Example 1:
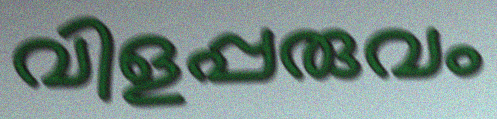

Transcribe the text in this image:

വിളപ്പരുവം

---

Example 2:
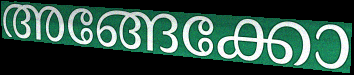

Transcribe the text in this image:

അങ്ങേക്കോ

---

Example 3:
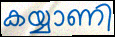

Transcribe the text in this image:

കയ്യാണി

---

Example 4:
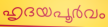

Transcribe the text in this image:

ഹൃദയപൂർവം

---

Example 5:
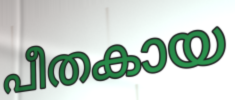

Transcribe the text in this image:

പീതകായ